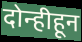
दोन्हीहून